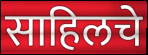
साहिलचे